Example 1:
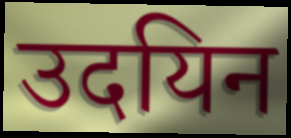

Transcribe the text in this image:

उदयिन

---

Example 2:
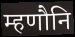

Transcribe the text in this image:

म्हणौनि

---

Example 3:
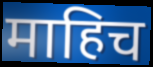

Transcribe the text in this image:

माहिच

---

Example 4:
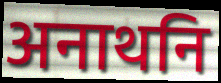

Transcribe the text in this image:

अनाथनि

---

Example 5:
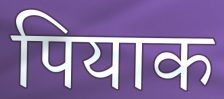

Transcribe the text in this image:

पियाक